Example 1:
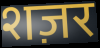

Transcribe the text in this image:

शज़र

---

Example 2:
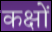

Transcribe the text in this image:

कक्षों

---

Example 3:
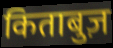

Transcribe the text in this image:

किताबुज़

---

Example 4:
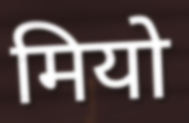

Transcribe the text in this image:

मियो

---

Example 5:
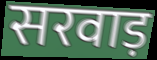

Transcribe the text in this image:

सरवाड़